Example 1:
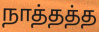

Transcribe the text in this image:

நாத்தத்த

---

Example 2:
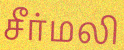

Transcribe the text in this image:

சீர்மலி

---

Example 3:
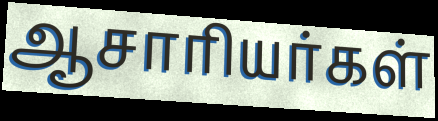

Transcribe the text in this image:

ஆசாரியர்கள்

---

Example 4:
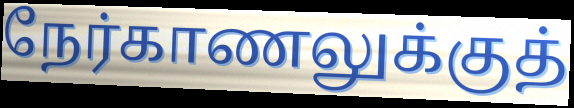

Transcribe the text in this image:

நேர்காணலுக்குத்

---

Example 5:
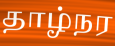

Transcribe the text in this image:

தாழ்நர